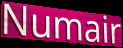
Numair